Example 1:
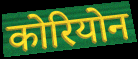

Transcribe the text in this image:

कोरियोन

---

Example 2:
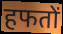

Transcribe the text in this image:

हफतों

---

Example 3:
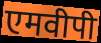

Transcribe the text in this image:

एमवीपी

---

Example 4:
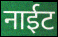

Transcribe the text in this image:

नाईट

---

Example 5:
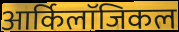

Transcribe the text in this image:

आर्किलॉजिकल